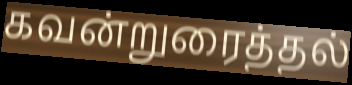
கவன்றுரைத்தல்